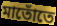
মাতোঁতে